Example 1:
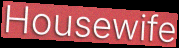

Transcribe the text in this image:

Housewife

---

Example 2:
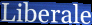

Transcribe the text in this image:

Liberale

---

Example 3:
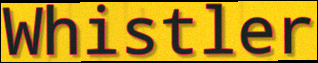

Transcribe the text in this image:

Whistler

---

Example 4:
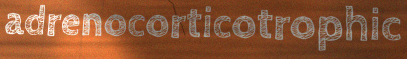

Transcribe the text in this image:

adrenocorticotrophic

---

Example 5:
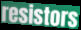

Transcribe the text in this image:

resistors